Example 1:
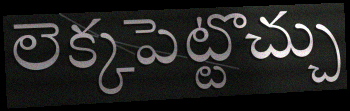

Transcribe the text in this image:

లెక్కపెట్టొచ్చు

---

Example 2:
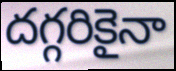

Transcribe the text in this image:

దగ్గరికైనా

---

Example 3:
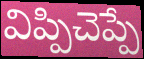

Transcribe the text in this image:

విప్పిచెప్పే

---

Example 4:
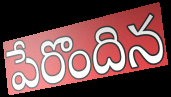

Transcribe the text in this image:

పేరొందిన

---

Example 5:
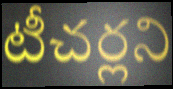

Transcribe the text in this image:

టీచర్లని